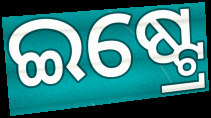
ଇଷ୍ଟ୍ରେ